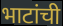
भाटांची